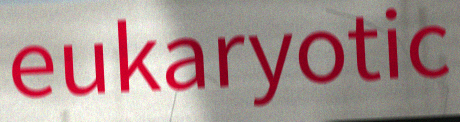
eukaryotic